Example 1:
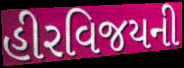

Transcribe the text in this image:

હીરવિજયની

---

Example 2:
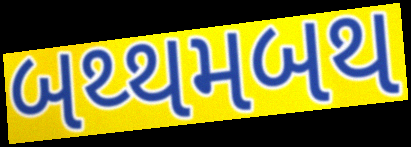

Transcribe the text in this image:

બથ્થમબથ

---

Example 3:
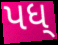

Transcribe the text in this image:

પધ્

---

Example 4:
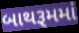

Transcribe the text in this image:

બાથરૂમમાં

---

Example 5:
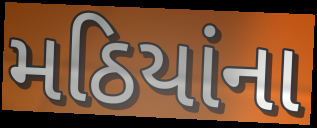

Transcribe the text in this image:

મઠિયાંના